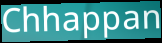
Chhappan